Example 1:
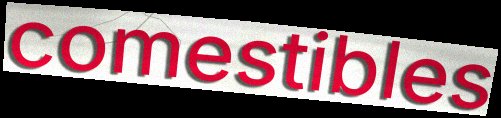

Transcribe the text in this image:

comestibles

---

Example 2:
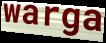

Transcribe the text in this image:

warga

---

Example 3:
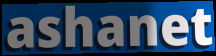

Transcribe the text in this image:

ashanet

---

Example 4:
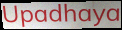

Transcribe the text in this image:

Upadhaya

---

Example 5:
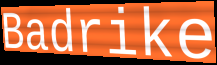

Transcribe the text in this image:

Badrike